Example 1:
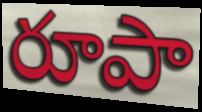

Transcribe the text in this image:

రూపా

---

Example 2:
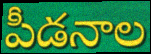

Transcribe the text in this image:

పీడనాల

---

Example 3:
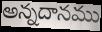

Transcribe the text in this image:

అన్నదానము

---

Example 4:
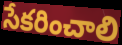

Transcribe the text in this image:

సేకరించాలి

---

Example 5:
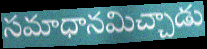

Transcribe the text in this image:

సమాధానమిచ్చాడు